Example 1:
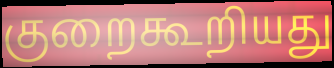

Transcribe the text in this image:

குறைகூறியது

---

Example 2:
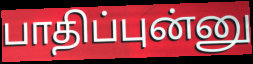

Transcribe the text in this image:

பாதிப்புன்னு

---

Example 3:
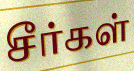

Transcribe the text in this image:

சீர்கள்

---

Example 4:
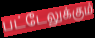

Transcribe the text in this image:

பட்டேலுக்கும்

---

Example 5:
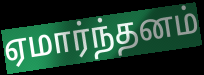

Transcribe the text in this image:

ஏமார்ந்தனம்